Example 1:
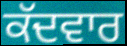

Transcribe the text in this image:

ਕੱਦਵਾਰ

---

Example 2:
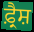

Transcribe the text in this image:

ਫ਼੍ਰੈਸ਼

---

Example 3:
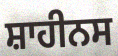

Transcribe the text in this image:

ਸ਼ਾਹੀਨਸ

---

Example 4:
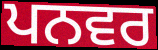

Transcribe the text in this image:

ਪਨਵਰ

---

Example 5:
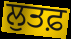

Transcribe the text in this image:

ਲੁਤਫ਼